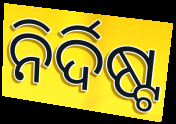
ନିର୍ଦିଷ୍ଟ